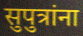
सुपुत्रांना